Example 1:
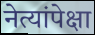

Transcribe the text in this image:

नेत्यांपेक्षा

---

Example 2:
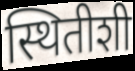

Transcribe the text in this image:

स्थितीशी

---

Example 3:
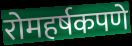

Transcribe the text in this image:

रोमहर्षकपणे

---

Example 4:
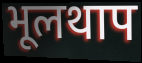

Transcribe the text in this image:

भूलथाप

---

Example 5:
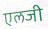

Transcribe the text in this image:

एलजी